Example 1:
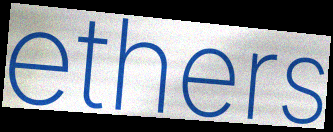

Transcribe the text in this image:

ethers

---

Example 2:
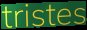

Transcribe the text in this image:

tristes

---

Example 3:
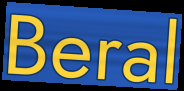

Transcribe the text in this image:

Beral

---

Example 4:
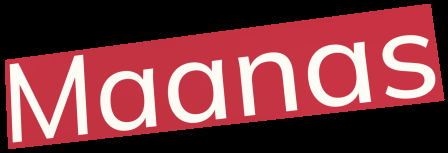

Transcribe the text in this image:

Maanas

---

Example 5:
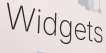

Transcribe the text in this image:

Widgets